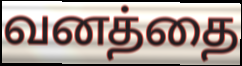
வனத்தை